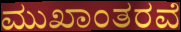
ಮುಖಾಂತರವೆ